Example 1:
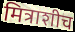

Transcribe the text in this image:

मित्राशीच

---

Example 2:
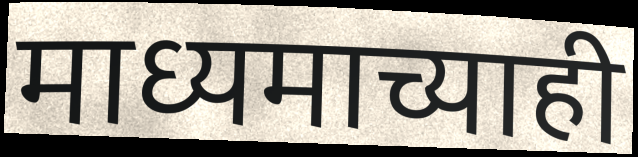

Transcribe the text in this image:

माध्यमाच्याही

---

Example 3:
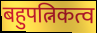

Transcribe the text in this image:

बहुपत्निकत्व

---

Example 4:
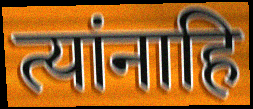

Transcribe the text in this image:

त्यांनाहि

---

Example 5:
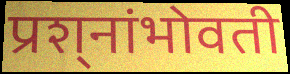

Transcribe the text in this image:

प्रश्नांभोवती